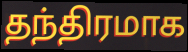
தந்திரமாக